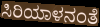
ಸಿರಿಯಾಳನಂತೆ